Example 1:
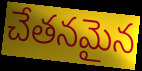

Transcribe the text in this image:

చేతనమైన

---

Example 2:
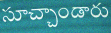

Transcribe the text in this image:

సూచ్చాండారు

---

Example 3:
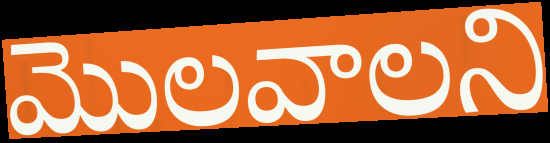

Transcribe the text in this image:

మొలవాలని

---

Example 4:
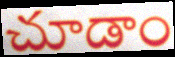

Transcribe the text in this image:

చూడాం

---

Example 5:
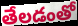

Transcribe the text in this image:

తేలడంతో